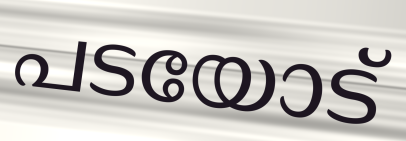
പടയോട്